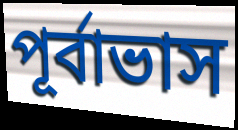
পূৰ্বাভাস